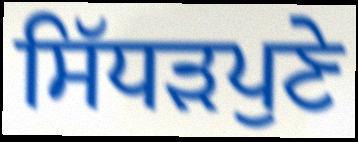
ਸਿੱਧੜਪੁਣੇ